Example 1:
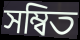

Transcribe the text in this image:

সম্বিত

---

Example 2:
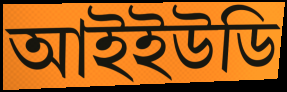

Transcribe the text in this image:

আইইউডি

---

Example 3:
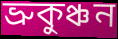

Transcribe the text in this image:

ভ্রুকুঞ্চন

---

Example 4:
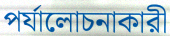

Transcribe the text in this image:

পর্যালোচনাকারী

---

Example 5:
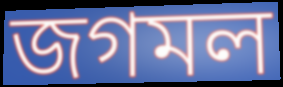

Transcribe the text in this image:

জগমল